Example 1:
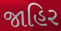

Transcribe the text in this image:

જાહિર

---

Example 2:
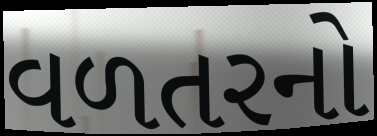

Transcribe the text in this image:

વળતરનો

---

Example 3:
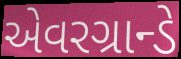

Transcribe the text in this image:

એવરગ્રાન્ડે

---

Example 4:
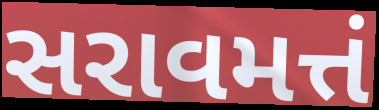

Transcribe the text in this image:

સરાવમત્તં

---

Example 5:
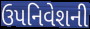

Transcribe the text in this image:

ઉપનિવેશની